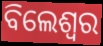
ବିଲେଶ୍ଵର